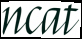
ncat